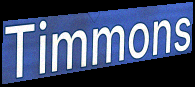
Timmons